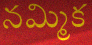
నమ్మిక